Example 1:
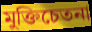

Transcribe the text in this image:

মুক্তিচেতনা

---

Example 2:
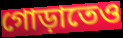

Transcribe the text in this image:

গোড়াতেও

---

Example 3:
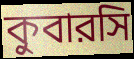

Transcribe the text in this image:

কুবারসি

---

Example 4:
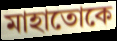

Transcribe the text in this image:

মাহাতোকে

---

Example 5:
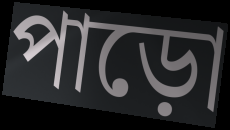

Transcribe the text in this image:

পাড়ো